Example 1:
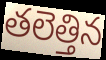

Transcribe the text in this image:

తలెత్తిన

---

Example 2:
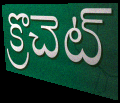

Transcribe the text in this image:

క్రొచెట్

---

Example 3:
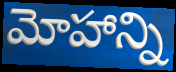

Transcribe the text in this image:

మోహాన్ని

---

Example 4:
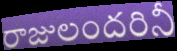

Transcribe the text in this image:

రాజులందరినీ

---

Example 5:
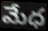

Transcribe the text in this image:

మేధ